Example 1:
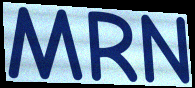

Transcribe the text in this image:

MRN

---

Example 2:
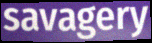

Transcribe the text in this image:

savagery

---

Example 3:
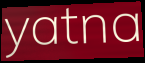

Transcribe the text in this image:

yatna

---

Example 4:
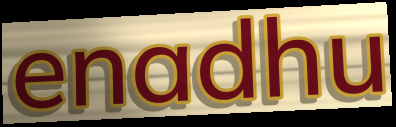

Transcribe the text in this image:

enadhu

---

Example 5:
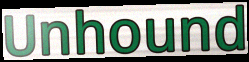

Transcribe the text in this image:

Unhound